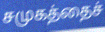
சமுகத்தைச்